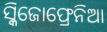
ସ୍କିଜୋଫ୍ରେନିଆ